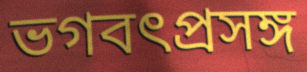
ভগবৎপ্রসঙ্গ